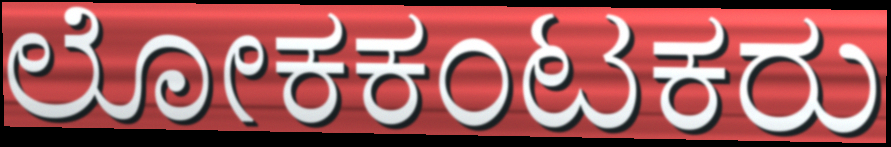
ಲೋಕಕಂಟಕರು